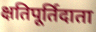
क्षतिपूर्तिदाता